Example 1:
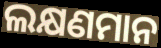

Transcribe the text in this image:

ଲକ୍ଷଣମାନ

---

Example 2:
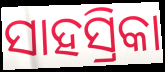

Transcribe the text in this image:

ସାହସ୍ରିକା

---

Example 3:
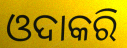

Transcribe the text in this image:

ଓଦାକରି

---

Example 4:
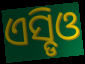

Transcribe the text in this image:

ଏସ୍ଡିଓ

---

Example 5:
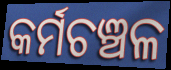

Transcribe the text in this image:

କର୍ମଚଞ୍ଚଳ